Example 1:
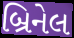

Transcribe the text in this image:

બ્રિનેલ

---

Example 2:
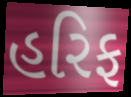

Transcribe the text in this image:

હરિફ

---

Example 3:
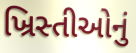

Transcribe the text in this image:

ખ્રિસ્તીઓનું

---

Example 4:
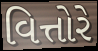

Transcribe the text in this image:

વિત્તોરે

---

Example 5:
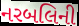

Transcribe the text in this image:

નરબલિની